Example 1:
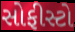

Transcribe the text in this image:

સોફીસ્ટો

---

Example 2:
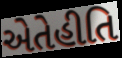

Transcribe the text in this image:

એતેહીતિ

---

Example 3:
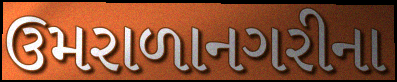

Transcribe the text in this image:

ઉમરાળાનગરીના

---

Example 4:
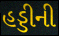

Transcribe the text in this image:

હડ્ડીની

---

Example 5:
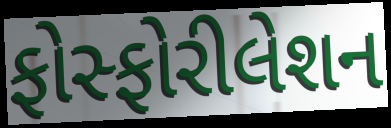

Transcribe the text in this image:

ફોસ્ફોરીલેશન